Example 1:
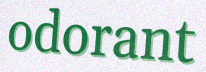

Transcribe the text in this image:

odorant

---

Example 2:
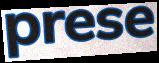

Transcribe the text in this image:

prese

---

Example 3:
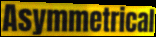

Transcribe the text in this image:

Asymmetrical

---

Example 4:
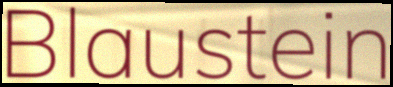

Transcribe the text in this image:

Blaustein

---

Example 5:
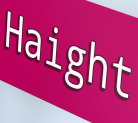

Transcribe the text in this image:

Haight